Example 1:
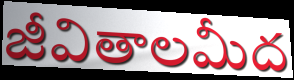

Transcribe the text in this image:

జీవితాలమీద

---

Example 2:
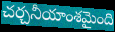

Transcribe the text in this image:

చర్చనీయాంశమైంది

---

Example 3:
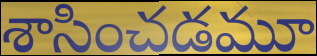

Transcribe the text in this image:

శాసించడమూ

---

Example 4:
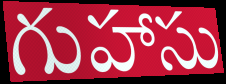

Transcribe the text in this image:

గుహాసు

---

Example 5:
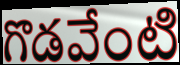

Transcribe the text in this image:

గొడవేంటి